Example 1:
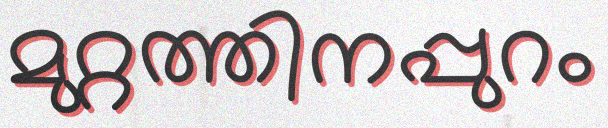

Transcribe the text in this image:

മുറ്റത്തിനപ്പുറം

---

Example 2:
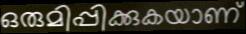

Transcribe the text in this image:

ഒരുമിപ്പിക്കുകയാണ്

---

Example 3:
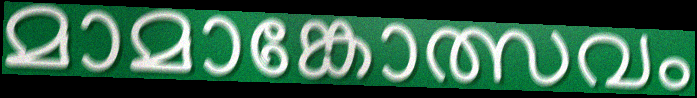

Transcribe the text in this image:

മാമാങ്കോത്സവം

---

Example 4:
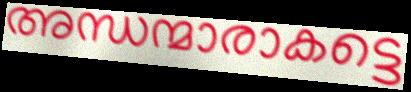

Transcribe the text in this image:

അന്ധന്മാരാകട്ടെ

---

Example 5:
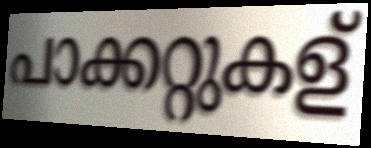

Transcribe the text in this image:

പാക്കറ്റുകള്